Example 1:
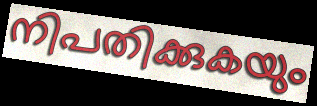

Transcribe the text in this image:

നിപതിക്കുകയും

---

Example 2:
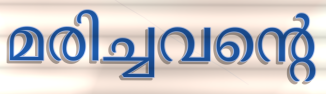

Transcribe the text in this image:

മരിച്ചവന്റെ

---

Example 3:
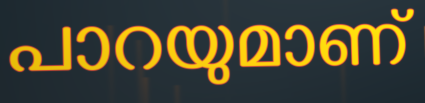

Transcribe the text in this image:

പാറയുമാണ്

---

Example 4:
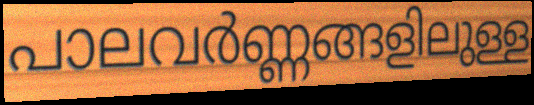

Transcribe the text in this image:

പാലവർണ്ണങ്ങളിലുള്ള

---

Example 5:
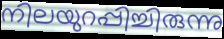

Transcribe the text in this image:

നിലയുറപ്പിച്ചിരുന്നു